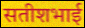
सतीशभाई